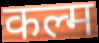
कल्म